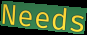
Needs